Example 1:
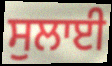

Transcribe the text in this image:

ਸੁਲਾਈ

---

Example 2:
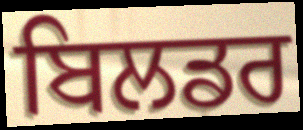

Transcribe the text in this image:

ਬਿਲਡਰ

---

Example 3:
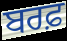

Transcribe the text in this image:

ਬਰਫ਼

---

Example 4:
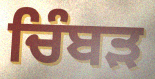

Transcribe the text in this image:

ਚਿੰਬੜ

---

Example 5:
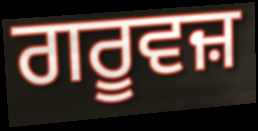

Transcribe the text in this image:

ਗਰੂਵਜ਼